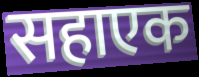
सहाएक